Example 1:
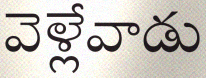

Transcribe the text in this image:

వెళ్లేవాడు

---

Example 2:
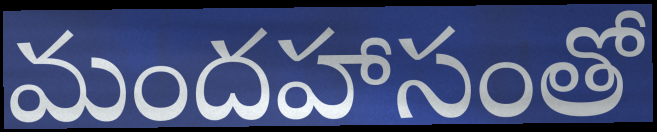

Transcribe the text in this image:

మందహాసంతో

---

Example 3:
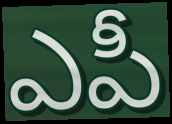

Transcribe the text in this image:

ఎపీ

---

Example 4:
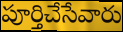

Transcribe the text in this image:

పూర్తిచేసేవారు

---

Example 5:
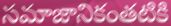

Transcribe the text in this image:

సమాజానికంతటికి